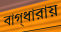
বাগ্‌ধারায়